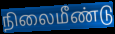
நிலைமீண்டு